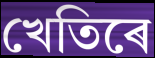
খেতিৰে